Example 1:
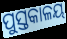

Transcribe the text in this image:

ପୁସ୍ତକାଳୟ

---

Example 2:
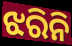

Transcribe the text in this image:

ଝରିନି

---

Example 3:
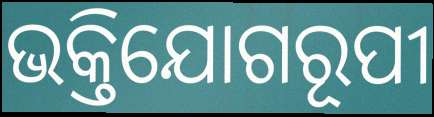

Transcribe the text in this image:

ଭକ୍ତିଯୋଗରୂପୀ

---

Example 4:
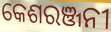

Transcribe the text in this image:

କେଶରଞ୍ଜନୀ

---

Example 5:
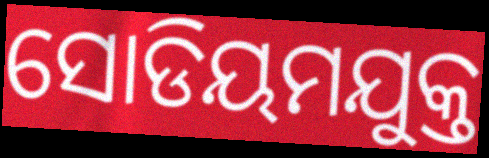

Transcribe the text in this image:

ସୋଡିୟମଯୁକ୍ତ